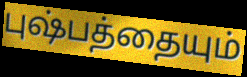
புஷ்பத்தையும்